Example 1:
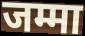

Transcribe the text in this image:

जम्मा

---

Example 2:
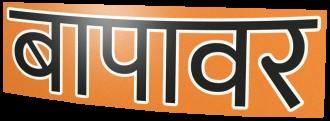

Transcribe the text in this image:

बापावर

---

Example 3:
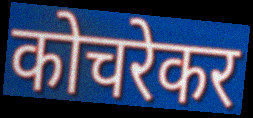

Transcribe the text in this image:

कोचरेकर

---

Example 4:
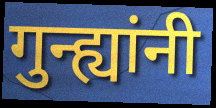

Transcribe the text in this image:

गुन्ह्यांनी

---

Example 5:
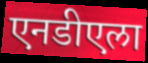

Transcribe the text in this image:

एनडीएला